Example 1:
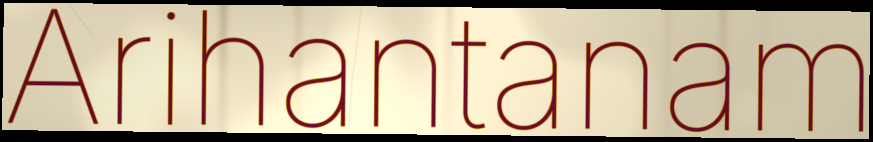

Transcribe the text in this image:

Arihantanam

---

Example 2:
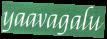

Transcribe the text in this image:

yaavagalu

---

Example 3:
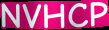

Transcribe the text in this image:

NVHCP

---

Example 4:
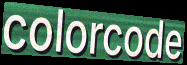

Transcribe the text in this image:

colorcode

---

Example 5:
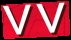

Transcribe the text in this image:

vv